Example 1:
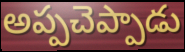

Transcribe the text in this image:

అప్పచెప్పాడు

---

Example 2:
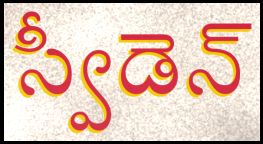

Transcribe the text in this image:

స్వీడెన్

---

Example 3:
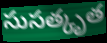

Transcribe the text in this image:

సుసత్కృత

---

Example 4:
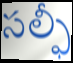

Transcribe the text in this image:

సల్ఫీ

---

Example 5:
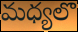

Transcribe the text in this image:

మధ్యలొ